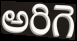
అరిగె